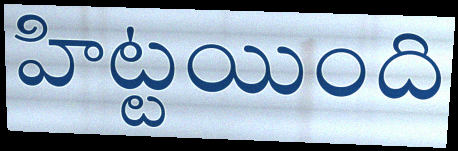
హిట్టయింది